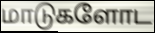
மாடுகளோட